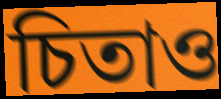
চিতাও